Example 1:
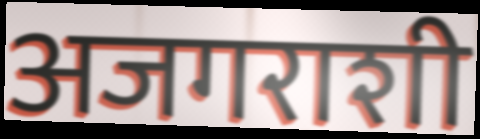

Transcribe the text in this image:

अजगराशी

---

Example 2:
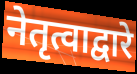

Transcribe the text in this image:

नेतृत्वाद्वारे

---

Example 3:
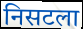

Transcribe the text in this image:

निसटला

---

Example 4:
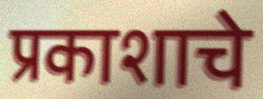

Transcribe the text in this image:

प्रकाशाचे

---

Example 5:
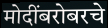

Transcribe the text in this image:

मोदींबरोबरचे